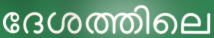
ദേശത്തിലെ